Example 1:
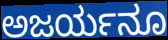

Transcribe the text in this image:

ಅಜರ್ಯನೂ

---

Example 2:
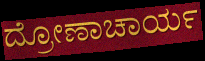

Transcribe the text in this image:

ದ್ರೋಣಾಚಾರ್ಯ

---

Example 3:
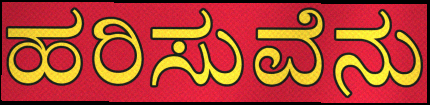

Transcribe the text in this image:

ಹರಿಸುವೆನು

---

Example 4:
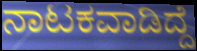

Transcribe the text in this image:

ನಾಟಕವಾಡಿದ್ದೆ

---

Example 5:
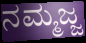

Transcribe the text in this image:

ನಮ್ಮಜ್ಜ